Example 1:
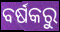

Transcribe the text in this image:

ବର୍ଷକରୁ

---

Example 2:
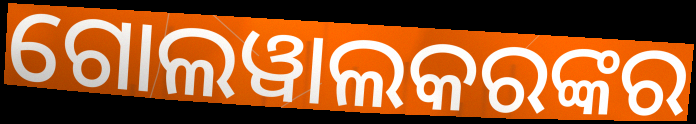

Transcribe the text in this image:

ଗୋଲୱାଲକରଙ୍କର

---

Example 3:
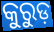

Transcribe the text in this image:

କୁରୁଡ଼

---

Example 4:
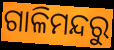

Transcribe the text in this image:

ଗାଳିମନ୍ଦରୁ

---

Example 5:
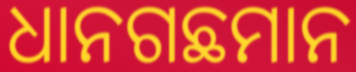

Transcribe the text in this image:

ଧାନଗଛମାନ